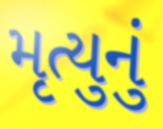
મૃત્યુનું